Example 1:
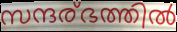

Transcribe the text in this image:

സന്ദര്ഭത്തിൽ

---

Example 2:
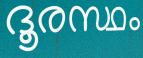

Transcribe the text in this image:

ദൂരസ്ഥം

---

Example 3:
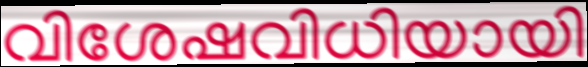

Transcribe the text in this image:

വിശേഷവിധിയായി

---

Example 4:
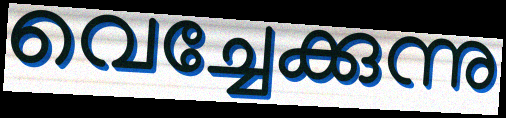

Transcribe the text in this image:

വെച്ചേക്കുന്നു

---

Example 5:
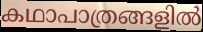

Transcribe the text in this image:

കഥാപാത്രങ്ങളിൽ